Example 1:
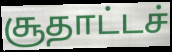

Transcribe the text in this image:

சூதாட்டச்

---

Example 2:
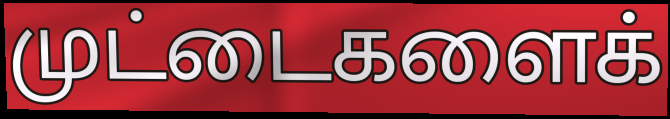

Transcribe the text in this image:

முட்டைகளைக்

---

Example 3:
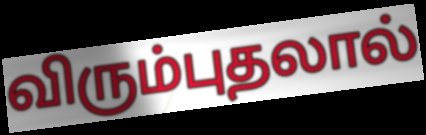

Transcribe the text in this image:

விரும்புதலால்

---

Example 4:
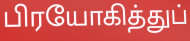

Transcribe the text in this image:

பிரயோகித்துப்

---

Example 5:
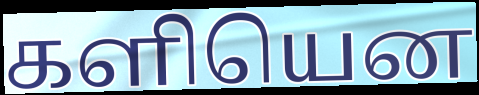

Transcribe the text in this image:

களியென